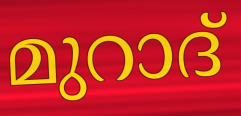
മുറാദ്